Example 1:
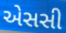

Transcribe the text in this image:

એસસી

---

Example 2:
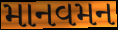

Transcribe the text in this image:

માનવમન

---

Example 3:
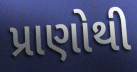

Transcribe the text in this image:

પ્રાણોથી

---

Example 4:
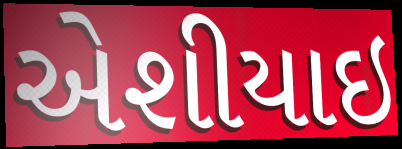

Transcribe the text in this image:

એશીયાઇ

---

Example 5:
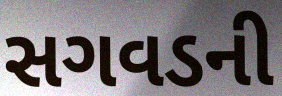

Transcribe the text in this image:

સગવડની